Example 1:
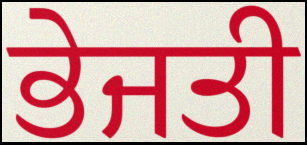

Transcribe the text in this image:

ਭੇਜਤੀ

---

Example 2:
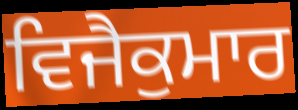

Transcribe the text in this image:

ਵਿਜੈਕੁਮਾਰ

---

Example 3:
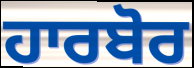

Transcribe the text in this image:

ਹਾਰਬੋਰ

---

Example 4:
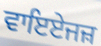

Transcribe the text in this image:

ਵਾਇਏਜਜ਼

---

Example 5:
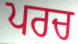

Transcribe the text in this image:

ਪਰਚ